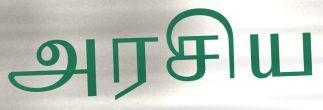
அரசிய